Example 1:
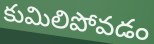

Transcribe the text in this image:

కుమిలిపోవడం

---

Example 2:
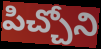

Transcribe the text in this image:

పిచ్చోని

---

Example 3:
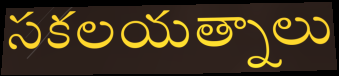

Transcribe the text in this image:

సకలయత్నాలు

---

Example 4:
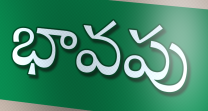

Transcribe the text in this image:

భావపు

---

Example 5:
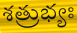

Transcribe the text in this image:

శత్రుభ్యః